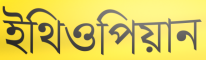
ইথিওপিয়ান